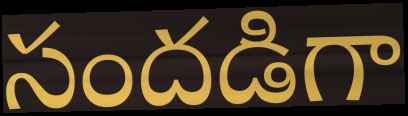
సందడిగా